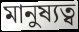
মানুষ্যত্ব